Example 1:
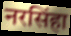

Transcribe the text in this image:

नरसिंहा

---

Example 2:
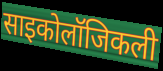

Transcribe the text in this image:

साइकोलॉजिकली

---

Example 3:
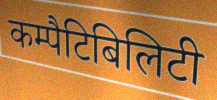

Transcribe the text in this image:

कम्पैटिबिलिटी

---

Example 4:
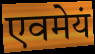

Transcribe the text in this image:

एवमेयं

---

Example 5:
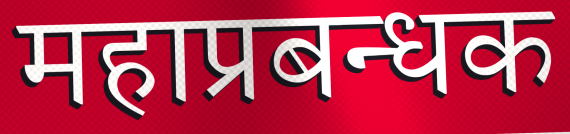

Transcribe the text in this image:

महाप्रबन्धक